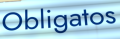
Obligatos